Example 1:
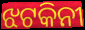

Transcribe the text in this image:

ଝଟକିନୀ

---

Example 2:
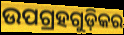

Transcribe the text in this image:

ଉପଗ୍ରହଗୁଡ଼ିକର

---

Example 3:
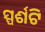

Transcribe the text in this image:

ସ୍ପର୍ଶଟି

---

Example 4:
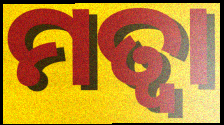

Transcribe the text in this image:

ମତ୍ୱା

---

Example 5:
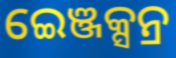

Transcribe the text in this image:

ଇେଞ୍ଜକ୍ସନ୍ର